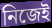
নিজেই